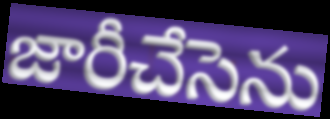
జారీచేసెను